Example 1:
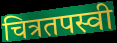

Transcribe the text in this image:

चित्रतपस्वी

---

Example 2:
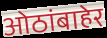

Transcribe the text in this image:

ओठांबाहेर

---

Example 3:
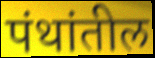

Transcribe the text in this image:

पंथांतील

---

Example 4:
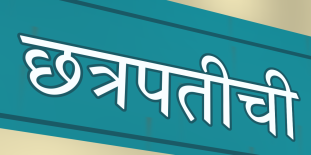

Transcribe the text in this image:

छत्रपतीची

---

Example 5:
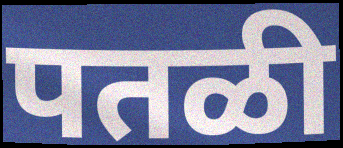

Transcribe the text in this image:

पतळी